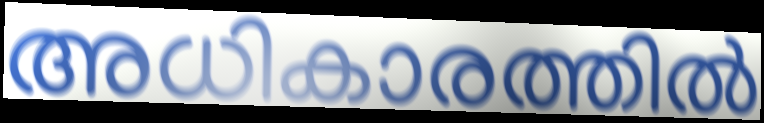
അധികാരത്തിൽ